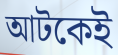
আটকেই